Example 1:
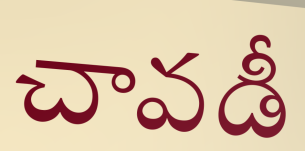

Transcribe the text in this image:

చావడీ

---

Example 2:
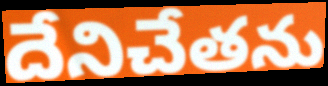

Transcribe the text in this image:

దేనిచేతను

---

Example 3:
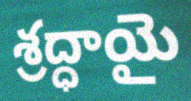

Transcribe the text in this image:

శ్రద్ధాయై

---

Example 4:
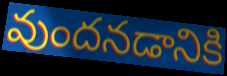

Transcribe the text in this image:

వుందనడానికి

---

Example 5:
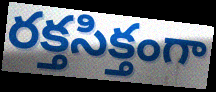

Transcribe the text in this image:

రక్తసిక్తంగా